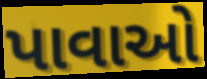
પાવાઓ